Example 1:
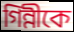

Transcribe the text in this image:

গিন্নীকে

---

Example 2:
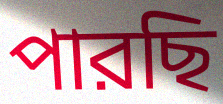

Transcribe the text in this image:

পারছি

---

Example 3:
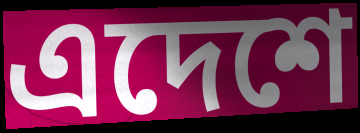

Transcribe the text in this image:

এদেশে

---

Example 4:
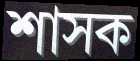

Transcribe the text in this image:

শাসক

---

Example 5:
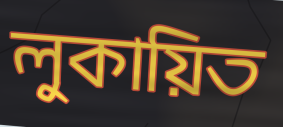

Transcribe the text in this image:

লুকায়িত